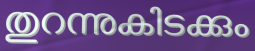
തുറന്നുകിടക്കും